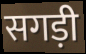
सगड़ी